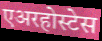
एअरहोस्टेस